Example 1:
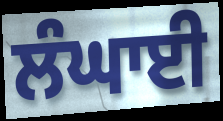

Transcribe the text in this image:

ਲੰਘਾਈ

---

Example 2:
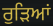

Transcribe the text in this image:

ਰੁੜਿਆਂ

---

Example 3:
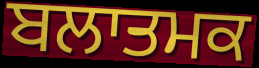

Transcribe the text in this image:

ਬਲਾਤਮਕ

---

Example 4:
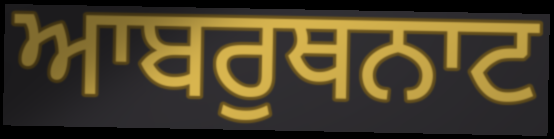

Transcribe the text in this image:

ਆਬਰੁਥਨਾਟ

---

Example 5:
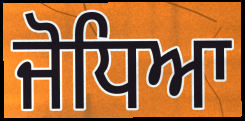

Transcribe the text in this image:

ਜੋਧਿਆ